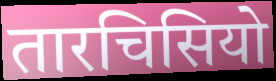
तारचिसियो